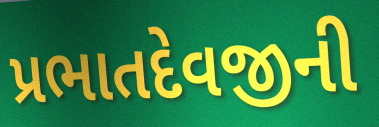
પ્રભાતદેવજીની